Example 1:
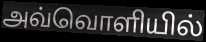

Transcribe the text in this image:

அவ்வொளியில்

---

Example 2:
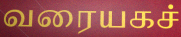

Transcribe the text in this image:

வரையகச்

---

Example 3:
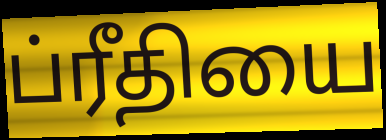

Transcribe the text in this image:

ப்ரீதியை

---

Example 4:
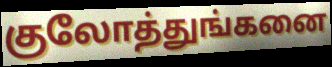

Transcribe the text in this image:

குலோத்துங்கனை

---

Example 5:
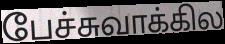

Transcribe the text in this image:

பேச்சுவாக்கில